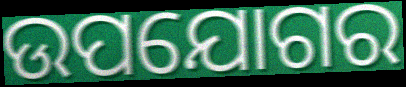
ଉପଯୋଗର